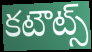
కటౌట్స్